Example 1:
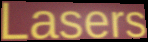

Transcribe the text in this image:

Lasers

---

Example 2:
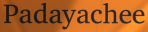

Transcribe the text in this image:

Padayachee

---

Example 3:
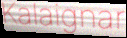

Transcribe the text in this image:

Kalaignar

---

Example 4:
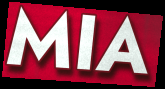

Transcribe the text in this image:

MIA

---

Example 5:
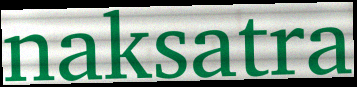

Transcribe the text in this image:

naksatra